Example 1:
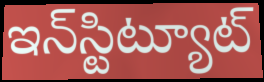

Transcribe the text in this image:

ఇన్‌స్టిట్యూట్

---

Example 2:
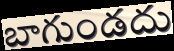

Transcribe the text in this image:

బాగుండదు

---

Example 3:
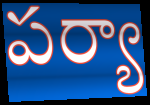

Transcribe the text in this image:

పర్యా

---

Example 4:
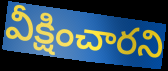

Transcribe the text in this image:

వీక్షించారని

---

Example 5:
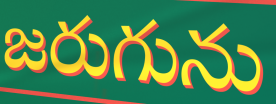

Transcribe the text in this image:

జరుగును